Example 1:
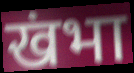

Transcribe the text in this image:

खंभा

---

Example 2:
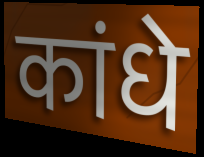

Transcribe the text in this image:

कांधे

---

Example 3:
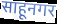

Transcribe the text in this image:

साहूनगर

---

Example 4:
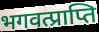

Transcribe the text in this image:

भगवत्प्राप्ति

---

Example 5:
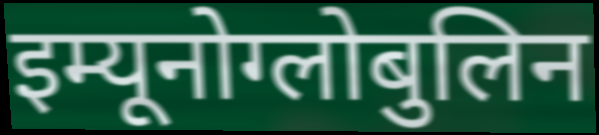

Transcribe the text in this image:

इम्यूनोग्लोबुलिन